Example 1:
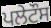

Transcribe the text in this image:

ਪਲੇਟੌਸ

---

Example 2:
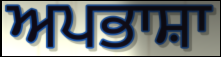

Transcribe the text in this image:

ਅਪਭਾਸ਼ਾ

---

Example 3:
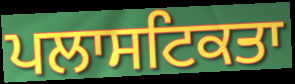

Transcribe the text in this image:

ਪਲਾਸਟਿਕਤਾ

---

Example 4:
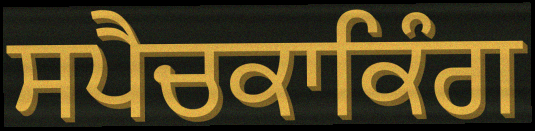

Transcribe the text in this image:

ਸਪੈਚਕਾਕਿੰਗ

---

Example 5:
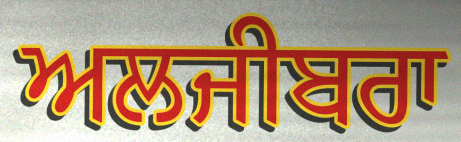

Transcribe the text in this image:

ਅਲਜੀਬਰਾ